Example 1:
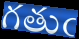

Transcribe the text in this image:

గతుఁ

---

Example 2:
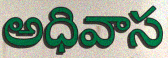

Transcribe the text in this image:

అధివాస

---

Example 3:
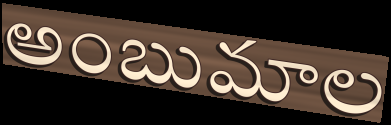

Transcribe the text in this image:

అంబుమాల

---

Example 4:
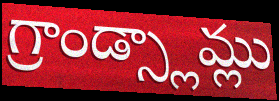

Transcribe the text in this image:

గ్రాండ్స్లామ్లు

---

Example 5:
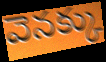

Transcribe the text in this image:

వెనక్కు